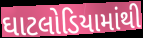
ઘાટલોડિયામાંથી